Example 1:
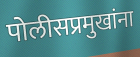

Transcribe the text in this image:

पोलीसप्रमुखांना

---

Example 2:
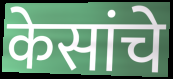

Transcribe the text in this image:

केसांचे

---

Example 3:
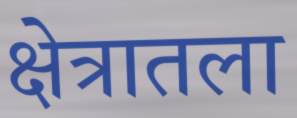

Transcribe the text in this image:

क्षेत्रातला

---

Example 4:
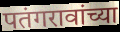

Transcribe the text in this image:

पतंगरावांच्या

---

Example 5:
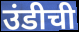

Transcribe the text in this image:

उंडीची